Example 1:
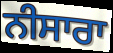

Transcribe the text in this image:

ਨੀਸਾਰਾ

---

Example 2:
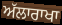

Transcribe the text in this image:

ਅੱਲਾਰਾਖਾ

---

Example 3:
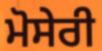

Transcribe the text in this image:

ਮੋਸੇਰੀ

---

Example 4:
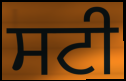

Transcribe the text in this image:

ਸਟੀ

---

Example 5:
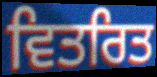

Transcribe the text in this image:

ਵਿਤਰਿਤ